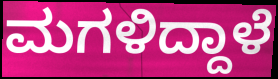
ಮಗಳಿದ್ದಾಳೆ